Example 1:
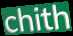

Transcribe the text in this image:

chith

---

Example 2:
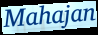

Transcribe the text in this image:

Mahajan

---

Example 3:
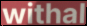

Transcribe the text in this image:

withal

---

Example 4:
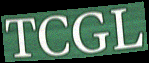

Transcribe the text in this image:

TCGL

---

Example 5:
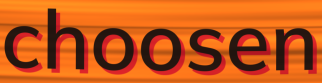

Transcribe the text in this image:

choosen